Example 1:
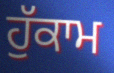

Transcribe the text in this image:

ਹੁੱਕਾਮ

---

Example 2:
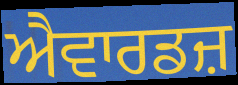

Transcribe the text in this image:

ਐਵਾਰਡਜ਼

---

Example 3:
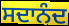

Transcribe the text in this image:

ਸਦਾਨੰਦ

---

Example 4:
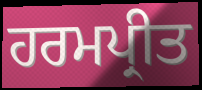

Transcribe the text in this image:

ਹਰਮਪ੍ਰੀਤ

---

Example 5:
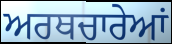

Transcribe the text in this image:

ਅਰਥਚਾਰੇਆਂ